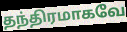
தந்திரமாகவே